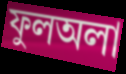
ফুলঅলা